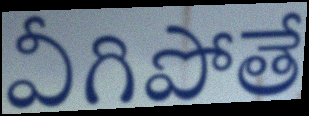
వీగిపోతే